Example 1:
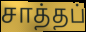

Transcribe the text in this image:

சாத்தப்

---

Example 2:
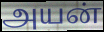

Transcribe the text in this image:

அயன்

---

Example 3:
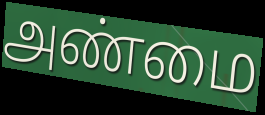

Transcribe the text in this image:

அண்மை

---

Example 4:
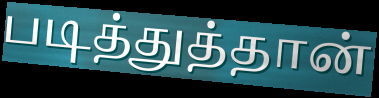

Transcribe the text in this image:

படித்துத்தான்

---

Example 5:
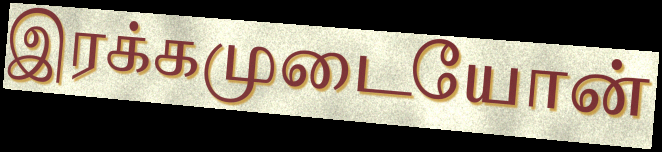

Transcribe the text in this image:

இரக்கமுடையோன்